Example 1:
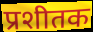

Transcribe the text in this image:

प्रशीतक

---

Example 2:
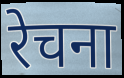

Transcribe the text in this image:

रेचना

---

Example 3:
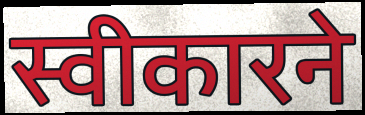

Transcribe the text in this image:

स्वीकारने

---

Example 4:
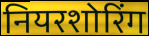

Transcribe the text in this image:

नियरशोरिंग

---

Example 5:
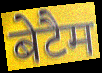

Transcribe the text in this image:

बेटैम